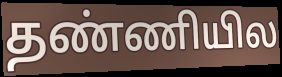
தண்ணியில